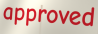
approved